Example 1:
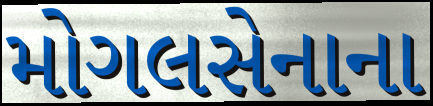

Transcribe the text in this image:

મોગલસેનાના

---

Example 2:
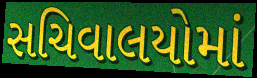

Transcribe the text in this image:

સચિવાલયોમાં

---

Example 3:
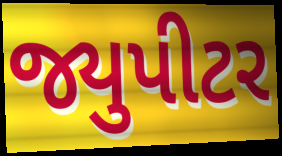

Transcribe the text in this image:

જ્યુપીટર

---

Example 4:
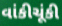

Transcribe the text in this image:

વાંકીચૂંકી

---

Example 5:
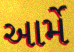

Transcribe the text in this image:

આર્મે